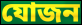
যোজন